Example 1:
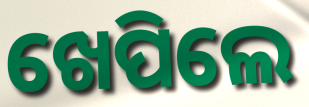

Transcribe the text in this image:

ଖେପିଲେ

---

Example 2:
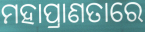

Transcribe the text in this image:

ମହାପ୍ରାଣତାରେ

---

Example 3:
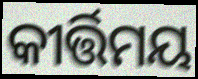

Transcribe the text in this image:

କୀର୍ତ୍ତିମୟ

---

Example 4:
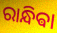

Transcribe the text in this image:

ରାନ୍ଧିଵା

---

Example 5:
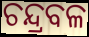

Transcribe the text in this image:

ଚନ୍ଦ୍ରବଳ